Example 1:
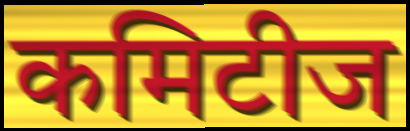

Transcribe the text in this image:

कमिटीज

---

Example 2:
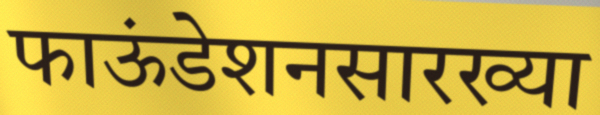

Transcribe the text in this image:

फाऊंडेशनसारख्या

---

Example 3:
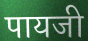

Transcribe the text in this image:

पायजी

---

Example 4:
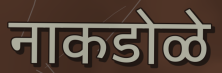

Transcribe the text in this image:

नाकडोळे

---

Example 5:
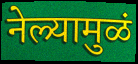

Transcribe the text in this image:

नेल्यामुळं